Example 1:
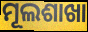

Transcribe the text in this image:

ମୂଲଶାଖା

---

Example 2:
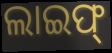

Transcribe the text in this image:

ଲାଇଫ୍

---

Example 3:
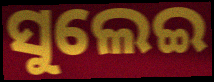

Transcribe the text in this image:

ସୁଲେଇ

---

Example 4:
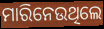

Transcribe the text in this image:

ମାରିନେଉଥିଲେ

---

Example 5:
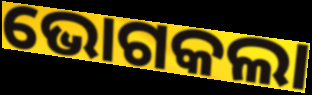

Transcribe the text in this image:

ଭୋଗକଲା